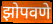
झोपवणे